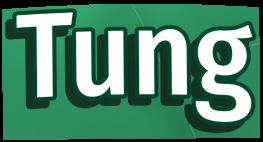
Tung